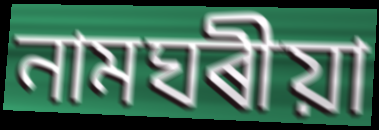
নামঘৰীয়া